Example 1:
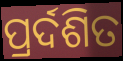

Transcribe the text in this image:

ପ୍ରର୍ଦଶିତ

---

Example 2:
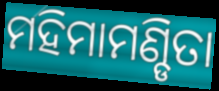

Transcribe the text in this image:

ମହିମାମଣ୍ଡିତା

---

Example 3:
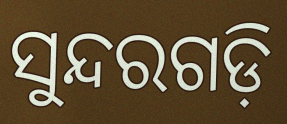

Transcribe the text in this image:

ସୁନ୍ଦରଗଡ଼ି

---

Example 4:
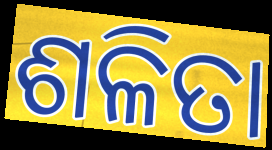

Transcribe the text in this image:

ଶଳିତା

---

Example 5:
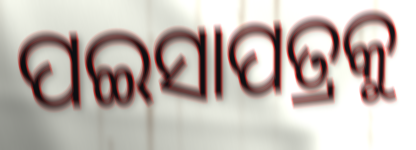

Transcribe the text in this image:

ପଇସାପତ୍ରକୁ